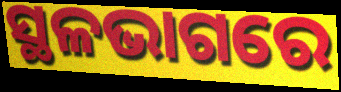
ସ୍ଥଳଭାଗରେ